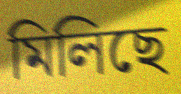
মিলিছে